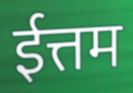
ईत्तम